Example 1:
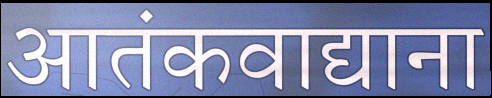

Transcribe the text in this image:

आतंकवाद्याना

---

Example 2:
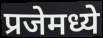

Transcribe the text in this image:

प्रजेमध्ये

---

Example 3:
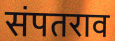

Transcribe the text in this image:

संपतराव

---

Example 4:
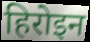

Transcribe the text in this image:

हिरोइन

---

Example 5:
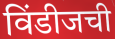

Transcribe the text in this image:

विंडीजची